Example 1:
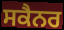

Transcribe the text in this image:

ਸਕੈਨਰ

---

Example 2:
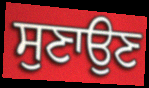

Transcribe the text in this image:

ਸੁਣਾਉਣ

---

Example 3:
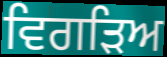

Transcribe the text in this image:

ਵਿਗੜਿਅ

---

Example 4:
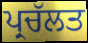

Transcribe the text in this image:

ਪ੍ਰਚੱਲਤ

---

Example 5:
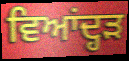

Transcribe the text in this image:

ਵਿਆਂਦ੍ਹੜ